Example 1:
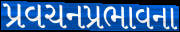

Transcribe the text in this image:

પ્રવચનપ્રભાવના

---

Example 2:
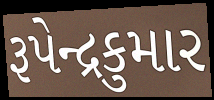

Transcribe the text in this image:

રૂપેન્દ્રકુમાર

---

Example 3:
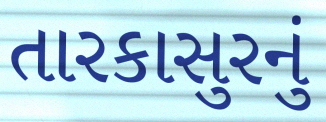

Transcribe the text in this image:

તારકાસુરનું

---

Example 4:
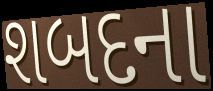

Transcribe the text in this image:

શબદના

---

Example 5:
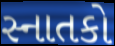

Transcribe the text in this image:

સ્નાતકો